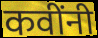
कवींनी